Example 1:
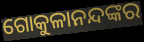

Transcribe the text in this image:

ଗୋକୁଳାନନ୍ଦଙ୍କର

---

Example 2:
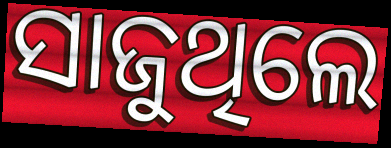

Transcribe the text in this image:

ସାଜୁଥିଲେ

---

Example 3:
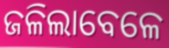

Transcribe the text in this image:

ଜଳିଲାବେଳେ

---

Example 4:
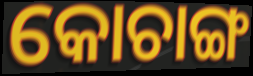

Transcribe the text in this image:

କୋଚାଙ୍ଗ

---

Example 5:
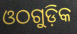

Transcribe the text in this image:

ଓଠଗୁଡ଼ିକ